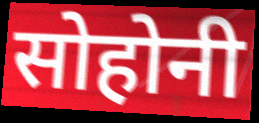
सोहोनी